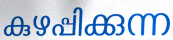
കുഴപ്പിക്കുന്ന